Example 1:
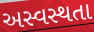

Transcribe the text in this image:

અસ્વસ્થતા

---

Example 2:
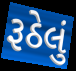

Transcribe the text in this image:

રૂઠેલું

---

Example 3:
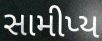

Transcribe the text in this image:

સામીપ્ય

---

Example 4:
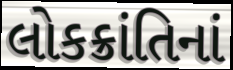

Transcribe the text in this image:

લોકક્રાંતિનાં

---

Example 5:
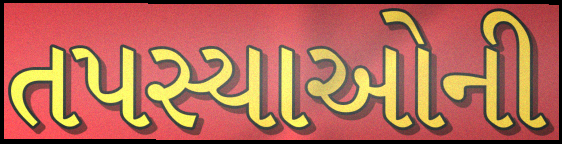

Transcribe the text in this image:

તપસ્યાઓની